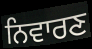
ਨਿਵਾਰਣ